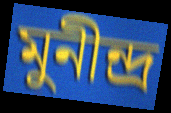
মুনীন্দ্ৰ